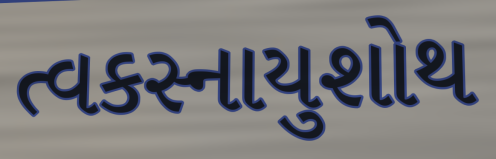
ત્વકસ્નાયુશોથ